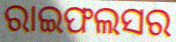
ରାଇଫଲସର